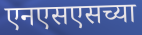
एनएसएसच्या